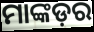
ମାଙ୍କଡ଼ର